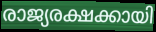
രാജ്യരക്ഷക്കായി